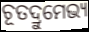
ଚୂତଦ୍ରୁମେଭ୍ୟ